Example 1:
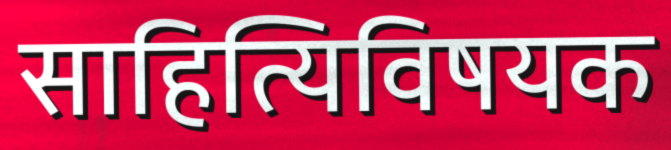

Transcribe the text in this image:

साहित्यिविषयक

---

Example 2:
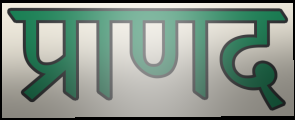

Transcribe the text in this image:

प्राणद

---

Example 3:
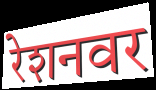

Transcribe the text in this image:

रेशनवर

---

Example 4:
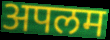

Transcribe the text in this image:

अपलम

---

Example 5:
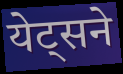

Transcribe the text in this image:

येट्सने